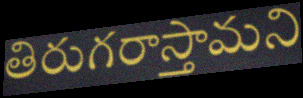
తిరుగరాస్తామని